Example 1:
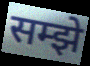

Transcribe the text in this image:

सम्झे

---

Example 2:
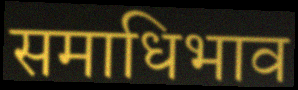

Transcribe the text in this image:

समाधिभाव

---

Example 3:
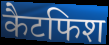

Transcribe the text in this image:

कैटफिश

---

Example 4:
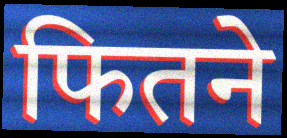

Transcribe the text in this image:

फितने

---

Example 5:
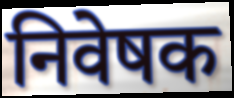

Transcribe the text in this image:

निवेषक